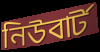
নিউবার্ট